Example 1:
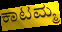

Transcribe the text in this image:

ಕಾಟಮ್ಮ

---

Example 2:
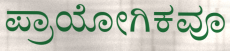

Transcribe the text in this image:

ಪ್ರಾಯೋಗಿಕವೂ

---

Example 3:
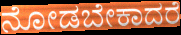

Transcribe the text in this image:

ನೋಡಬೇಕಾದರೆ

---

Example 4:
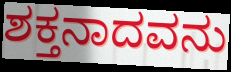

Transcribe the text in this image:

ಶಕ್ತನಾದವನು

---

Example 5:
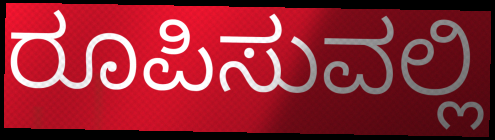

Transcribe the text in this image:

ರೂಪಿಸುವಲ್ಲಿ